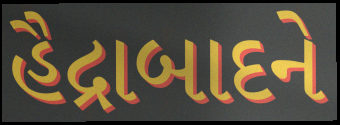
હૈદ્રાબાદને